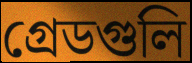
গ্রেডগুলি